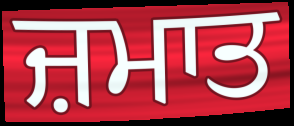
ਜ਼ਮਾਤ